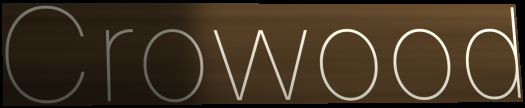
Crowood